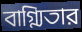
বাগ্মিতার